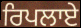
ਰਿਪਲਾਏ